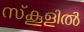
സ്‌കൂളിൽ